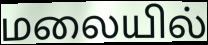
மலையில்